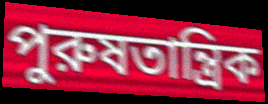
পুরুষতান্ত্রিক